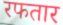
रफतार